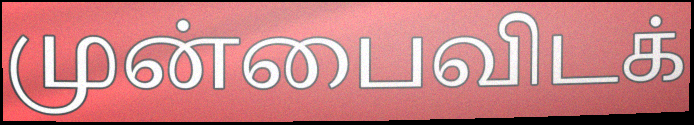
முன்பைவிடக்